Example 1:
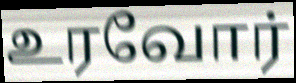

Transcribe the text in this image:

உரவோர்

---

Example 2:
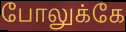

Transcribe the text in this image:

போலுக்கே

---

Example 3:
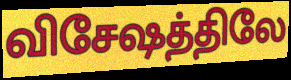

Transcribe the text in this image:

விசேஷத்திலே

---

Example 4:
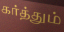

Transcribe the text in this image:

கர்த்தும்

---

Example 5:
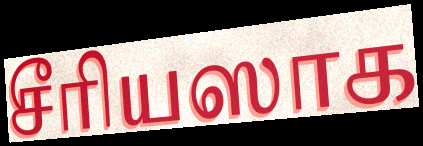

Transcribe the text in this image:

சீரியஸாக